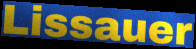
Lissauer